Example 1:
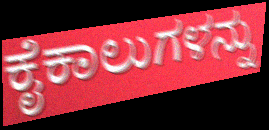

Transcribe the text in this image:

ಕೈಕಾಲುಗಳನ್ನು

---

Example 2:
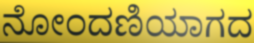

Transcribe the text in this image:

ನೋಂದಣಿಯಾಗದ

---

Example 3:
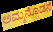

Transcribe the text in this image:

ಅಮ್ಮನೊಡನೆ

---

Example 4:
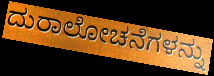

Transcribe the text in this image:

ದುರಾಲೋಚನೆಗಳನ್ನು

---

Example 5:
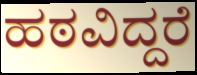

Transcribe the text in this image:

ಹಠವಿದ್ದರೆ